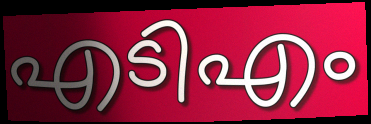
എടിഎം